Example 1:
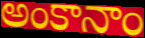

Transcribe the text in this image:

అంకానాం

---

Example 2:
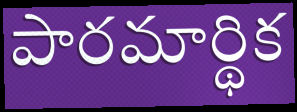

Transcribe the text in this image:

పారమార్థిక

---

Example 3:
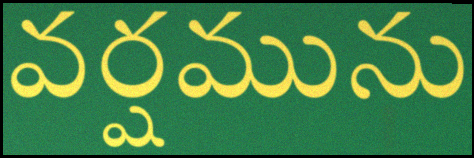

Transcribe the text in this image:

వర్షమును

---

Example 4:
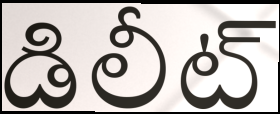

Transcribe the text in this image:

డిలీట్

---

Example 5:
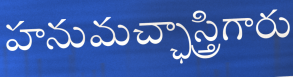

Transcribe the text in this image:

హనుమచ్ఛాస్త్రిగారు